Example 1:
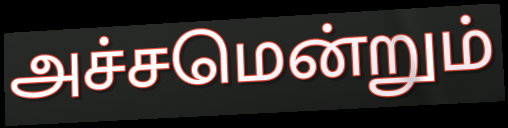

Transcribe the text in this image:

அச்சமென்றும்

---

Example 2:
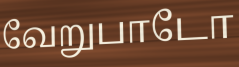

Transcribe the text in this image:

வேறுபாடோ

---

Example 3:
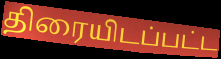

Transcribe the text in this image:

திரையிடப்பட்ட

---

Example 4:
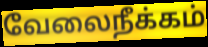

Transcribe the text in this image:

வேலைநீக்கம்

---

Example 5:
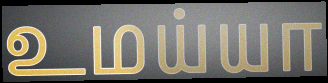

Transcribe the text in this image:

உமய்யா